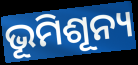
ଭୂମିଶୂନ୍ୟ